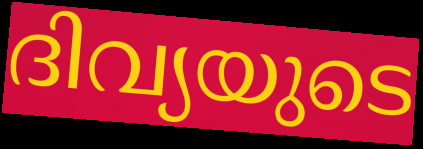
ദിവ്യയുടെ